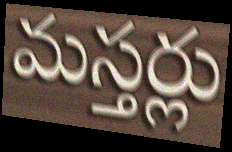
మస్తర్లు